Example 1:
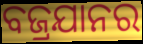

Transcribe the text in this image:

ବଜ୍ରଯାନର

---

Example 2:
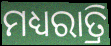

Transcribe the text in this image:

ମଧ୍ୟରାତ୍ରି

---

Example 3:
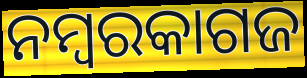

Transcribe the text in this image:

ନମ୍ବରକାଗଜ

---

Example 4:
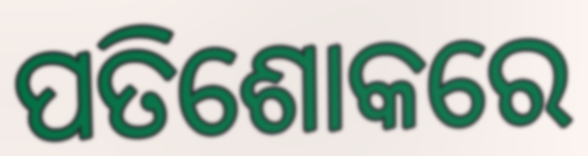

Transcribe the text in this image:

ପତିଶୋକରେ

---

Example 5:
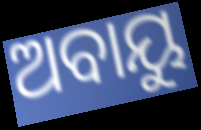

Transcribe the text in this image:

ଅବାୟୁ